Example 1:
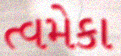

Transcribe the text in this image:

ત્વમેકા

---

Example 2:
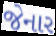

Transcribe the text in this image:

જેનાર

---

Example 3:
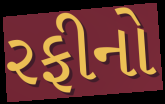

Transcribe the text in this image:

રફીનો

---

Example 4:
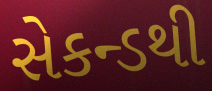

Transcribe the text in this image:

સેકન્ડથી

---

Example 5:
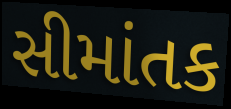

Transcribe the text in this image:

સીમાંતક